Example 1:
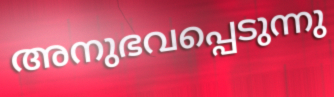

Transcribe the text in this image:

അനുഭവപ്പെടുന്നു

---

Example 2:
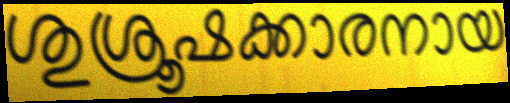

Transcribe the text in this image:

ശുശ്രൂഷക്കാരനായ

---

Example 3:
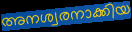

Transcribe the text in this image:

അനശ്വരനാക്കിയ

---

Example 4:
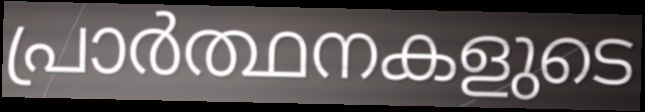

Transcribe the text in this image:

പ്രാർത്ഥനകളുടെ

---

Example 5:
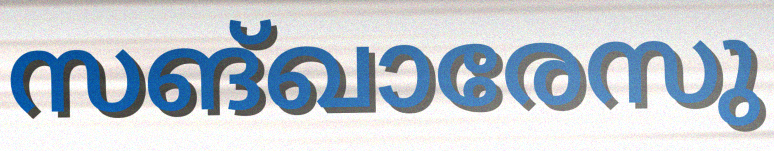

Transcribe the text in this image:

സങ്ഖാരേസു